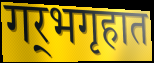
गर्भगृहात